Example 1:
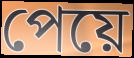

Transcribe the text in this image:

পেয়ে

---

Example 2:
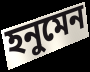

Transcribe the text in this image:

হনুমেন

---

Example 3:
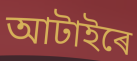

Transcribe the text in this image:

আটাইৰে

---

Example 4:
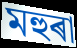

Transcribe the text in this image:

মহুৰা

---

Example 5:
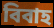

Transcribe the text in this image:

বিবাহ